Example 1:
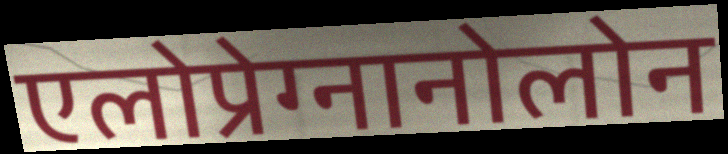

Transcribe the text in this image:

एलोप्रेग्नानोलोन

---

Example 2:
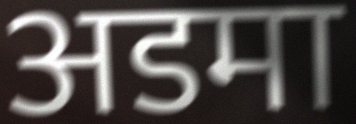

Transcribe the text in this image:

अडमा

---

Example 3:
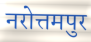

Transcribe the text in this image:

नरोत्तमपुर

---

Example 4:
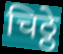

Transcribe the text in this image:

चिठ्ठे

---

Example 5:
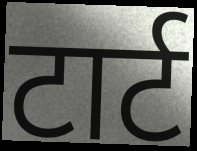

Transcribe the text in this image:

टार्ट